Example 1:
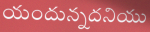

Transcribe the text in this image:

యందున్నదనియు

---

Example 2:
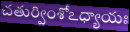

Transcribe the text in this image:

చతుర్వింశోఽధ్యాయః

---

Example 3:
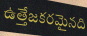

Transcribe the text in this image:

ఉత్తేజకరమైనది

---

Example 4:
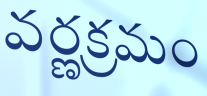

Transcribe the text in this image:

వర్ణక్రమం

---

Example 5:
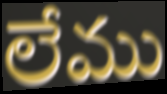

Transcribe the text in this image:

లేము